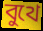
বুথে